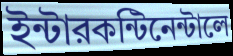
ইন্টারকন্টিনেন্টালে